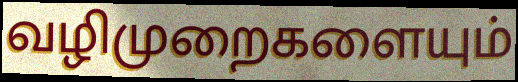
வழிமுறைகளையும்